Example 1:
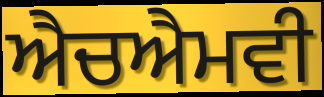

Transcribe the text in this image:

ਐਚਐਮਵੀ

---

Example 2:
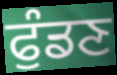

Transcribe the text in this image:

ਫੁੰਡਣ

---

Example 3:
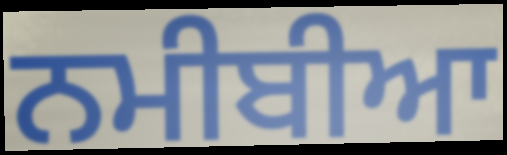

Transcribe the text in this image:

ਨਮੀਬੀਆ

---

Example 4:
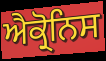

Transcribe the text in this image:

ਐਕ੍ਰੋਨਿਸ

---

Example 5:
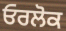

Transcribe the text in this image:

ਓਰਲੋਕ